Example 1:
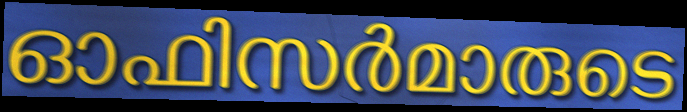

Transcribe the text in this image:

ഓഫിസർമാരുടെ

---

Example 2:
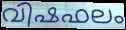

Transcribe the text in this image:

വിഷഫലം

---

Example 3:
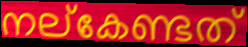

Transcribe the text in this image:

നല്കേണ്ടത്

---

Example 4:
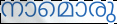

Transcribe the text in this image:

നാമൊരു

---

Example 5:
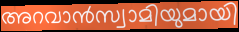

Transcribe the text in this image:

അറവാൻസ്വാമിയുമായി